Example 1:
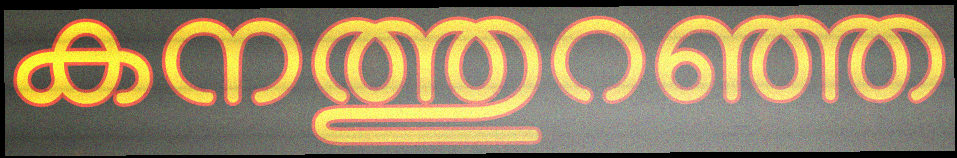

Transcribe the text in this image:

കനത്തുറഞ്ഞ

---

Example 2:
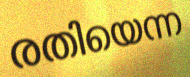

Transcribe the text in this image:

രതിയെന്ന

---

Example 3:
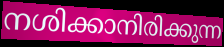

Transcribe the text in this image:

നശിക്കാനിരിക്കുന്ന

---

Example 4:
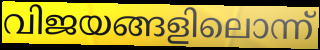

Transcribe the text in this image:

വിജയങ്ങളിലൊന്ന്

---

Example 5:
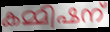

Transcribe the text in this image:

കമ്മിഷന്